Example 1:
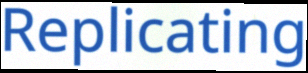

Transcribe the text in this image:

Replicating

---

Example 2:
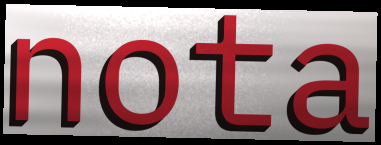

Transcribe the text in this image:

nota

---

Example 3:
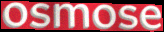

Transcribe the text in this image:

osmose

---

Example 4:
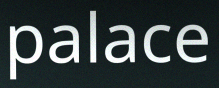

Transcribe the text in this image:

palace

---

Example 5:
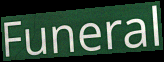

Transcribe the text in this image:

Funeral